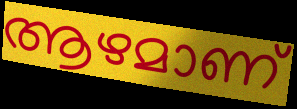
ആഴമാണ്